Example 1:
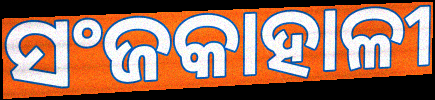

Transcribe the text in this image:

ସଂଜକାହାଳୀ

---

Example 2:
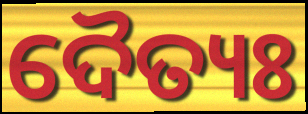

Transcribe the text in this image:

ଦୈତ୍ୟଃ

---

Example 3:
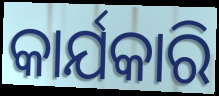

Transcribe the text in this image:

କାର୍ଯକାରି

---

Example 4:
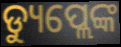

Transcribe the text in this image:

ଡ୍ୟୁପ୍ଲେଙ୍କ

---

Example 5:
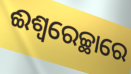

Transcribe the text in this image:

ଈଶ୍ୱରେଚ୍ଛାରେ